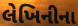
લેખિનીના